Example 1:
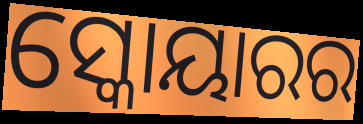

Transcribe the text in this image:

ସ୍କୋୟାରର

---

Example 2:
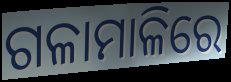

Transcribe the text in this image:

ଗଳାମାଳିରେ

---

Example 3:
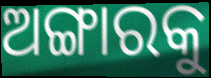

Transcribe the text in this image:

ଅଙ୍ଗାରକୁ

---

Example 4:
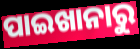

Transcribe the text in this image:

ପାଇଖାନାରୁ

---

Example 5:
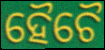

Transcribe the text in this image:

ହୈଚୈ